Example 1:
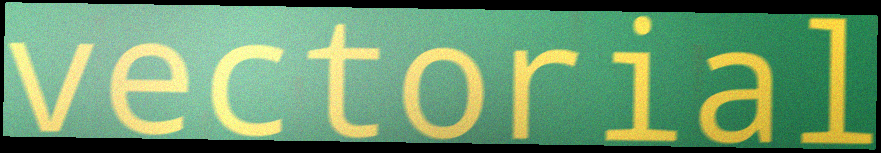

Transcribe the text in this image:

vectorial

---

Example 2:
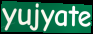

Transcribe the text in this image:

yujyate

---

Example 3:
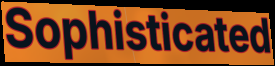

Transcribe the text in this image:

Sophisticated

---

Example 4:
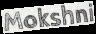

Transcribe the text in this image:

Mokshni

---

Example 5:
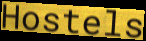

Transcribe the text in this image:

Hostels